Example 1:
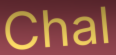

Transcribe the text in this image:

Chal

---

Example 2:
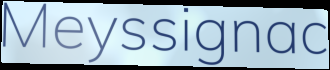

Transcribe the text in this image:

Meyssignac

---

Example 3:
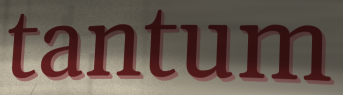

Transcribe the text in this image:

tantum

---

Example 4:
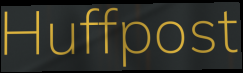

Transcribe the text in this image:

Huffpost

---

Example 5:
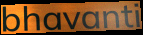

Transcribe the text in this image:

bhavanti